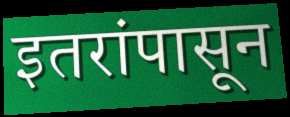
इतरांपासून